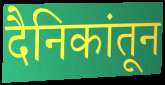
दैनिकांतून